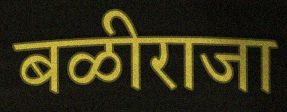
बळीराजा